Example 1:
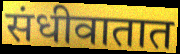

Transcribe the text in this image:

संधीवातात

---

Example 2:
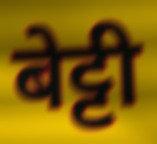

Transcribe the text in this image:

बेट्टी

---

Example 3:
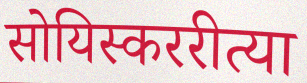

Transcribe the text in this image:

सोयिस्कररीत्या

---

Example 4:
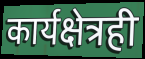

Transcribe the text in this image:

कार्यक्षेत्रही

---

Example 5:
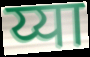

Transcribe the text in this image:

य्या